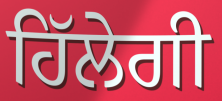
ਹਿੱਲੇਗੀ